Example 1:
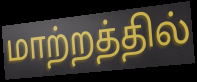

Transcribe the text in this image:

மாற்றத்தில்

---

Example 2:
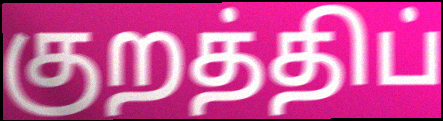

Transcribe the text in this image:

குறத்திப்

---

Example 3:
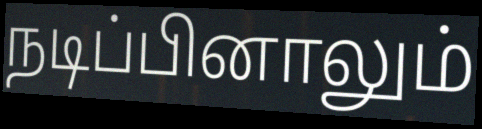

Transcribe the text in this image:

நடிப்பினாலும்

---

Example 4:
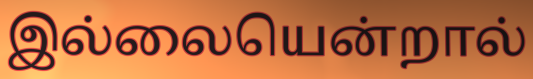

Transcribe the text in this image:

இல்லையென்றால்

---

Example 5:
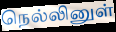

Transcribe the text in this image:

நெல்லினுள்